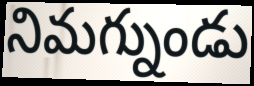
నిమగ్నుండు